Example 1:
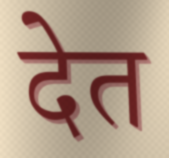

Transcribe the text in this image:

देत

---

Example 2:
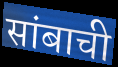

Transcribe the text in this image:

सांबाची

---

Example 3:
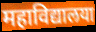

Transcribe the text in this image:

महाविद्यालया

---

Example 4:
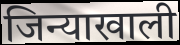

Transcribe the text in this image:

जिन्याखाली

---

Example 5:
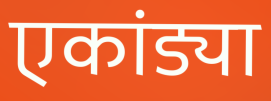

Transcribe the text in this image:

एकांड्या